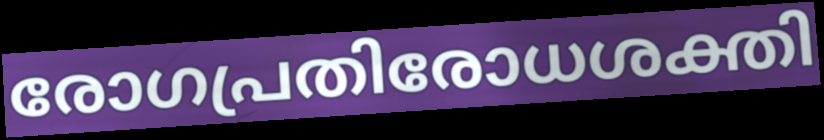
രോഗപ്രതിരോധശക്തി